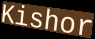
Kishor